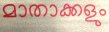
മാതാക്കളും